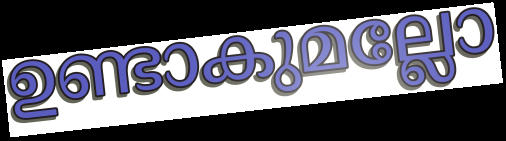
ഉണ്ടാകുമല്ലോ